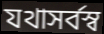
যথাসর্বস্ব